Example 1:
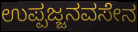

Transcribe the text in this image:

ಉಪ್ಪಜ್ಜನವಸೇನ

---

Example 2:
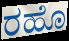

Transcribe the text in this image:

ರಹೊ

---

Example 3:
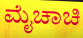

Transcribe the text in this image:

ಮೈಚಾಚಿ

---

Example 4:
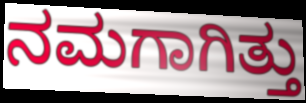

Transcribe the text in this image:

ನಮಗಾಗಿತ್ತು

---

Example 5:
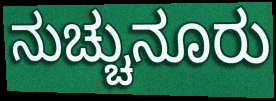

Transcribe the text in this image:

ನುಚ್ಚುನೂರು